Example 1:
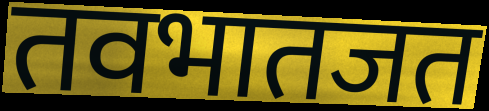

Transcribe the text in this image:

तवभातजत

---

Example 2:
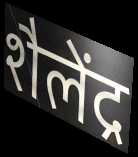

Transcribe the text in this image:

शैलेंद्र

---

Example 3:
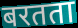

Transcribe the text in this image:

बरतता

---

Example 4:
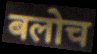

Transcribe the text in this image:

बलोच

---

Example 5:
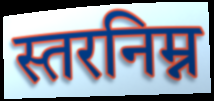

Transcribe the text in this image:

स्तरनिम्न